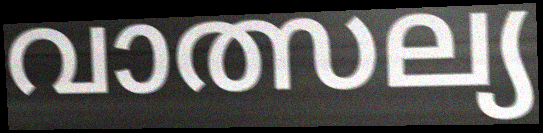
വാത്സല്യ